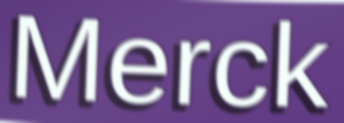
Merck